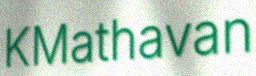
KMathavan